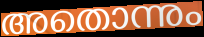
അതൊന്നും